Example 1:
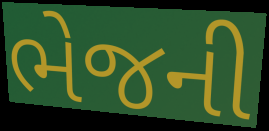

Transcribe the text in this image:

ભેજની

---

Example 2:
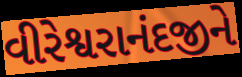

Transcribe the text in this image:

વીરેશ્વરાનંદજીને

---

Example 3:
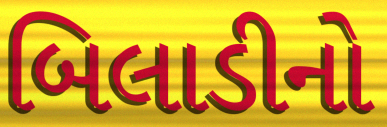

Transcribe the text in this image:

બિલાડીનો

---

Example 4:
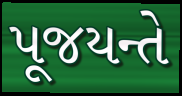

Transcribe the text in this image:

પૂજયન્તે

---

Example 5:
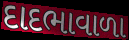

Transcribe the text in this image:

દાદભાવાળા